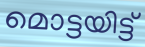
മൊട്ടയിട്ട്